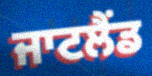
ਜਾਟਲੈਂਡ